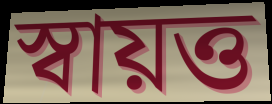
স্বায়ত্ত